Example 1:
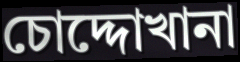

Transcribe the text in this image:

চোদ্দোখানা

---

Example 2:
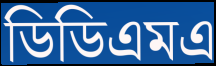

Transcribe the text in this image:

ডিডিএমএ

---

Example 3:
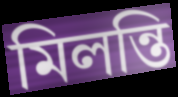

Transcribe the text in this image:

মিলন্তি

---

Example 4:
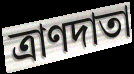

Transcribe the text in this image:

ত্রাণদাতা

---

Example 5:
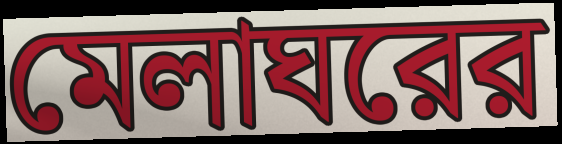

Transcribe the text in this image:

মেলাঘরের